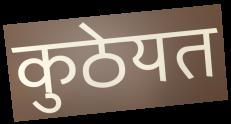
कुठेयत